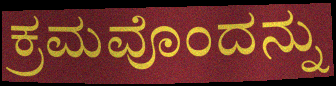
ಕ್ರಮವೊಂದನ್ನು